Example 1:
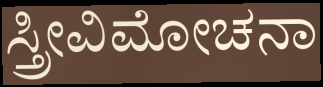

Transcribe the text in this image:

ಸ್ತ್ರೀವಿಮೋಚನಾ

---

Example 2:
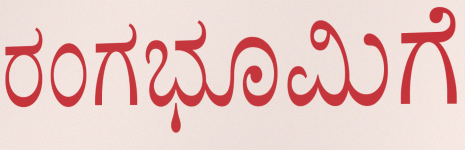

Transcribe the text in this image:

ರಂಗಭೂಮಿಗೆ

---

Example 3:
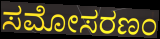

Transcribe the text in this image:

ಸಮೋಸರಣಂ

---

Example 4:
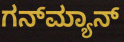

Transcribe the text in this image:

ಗನ್‌ಮ್ಯಾನ್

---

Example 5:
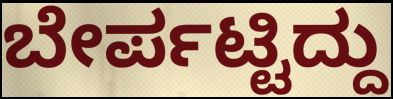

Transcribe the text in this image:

ಬೇರ್ಪಟ್ಟಿದ್ದು